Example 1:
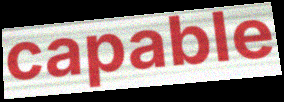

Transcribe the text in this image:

capable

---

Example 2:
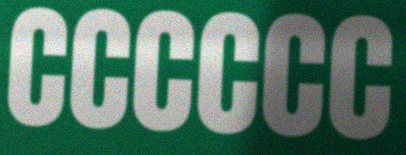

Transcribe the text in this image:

CCCCCC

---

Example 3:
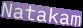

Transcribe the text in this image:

Natakam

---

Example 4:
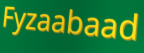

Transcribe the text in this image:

Fyzaabaad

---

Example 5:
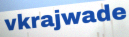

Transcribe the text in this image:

vkrajwade